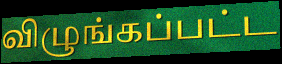
விழுங்கப்பட்ட